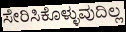
ಸೇರಿಸಿಕೊಳ್ಳುವುದಿಲ್ಲ